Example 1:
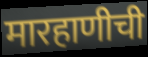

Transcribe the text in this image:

मारहाणीची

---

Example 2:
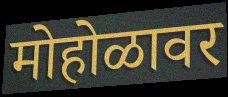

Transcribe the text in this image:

मोहोळावर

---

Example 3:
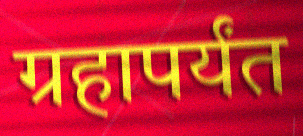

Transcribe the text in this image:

ग्रहापर्यंत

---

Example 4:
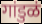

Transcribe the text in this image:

गांडुळं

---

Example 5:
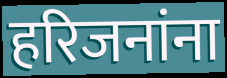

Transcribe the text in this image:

हरिजनांना